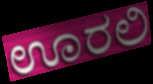
ಊರಲಿ